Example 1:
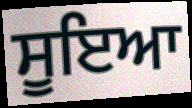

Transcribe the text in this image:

ਸੂਇਆ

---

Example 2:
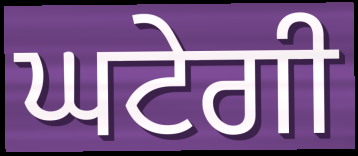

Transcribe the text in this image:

ਘਟੇਗੀ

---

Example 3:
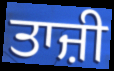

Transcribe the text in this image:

ਤਾਜ਼ੀ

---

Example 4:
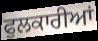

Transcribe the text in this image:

ਫੁਲਕਾਰੀਆਂ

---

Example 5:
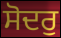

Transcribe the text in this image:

ਸੋਦਰੁ